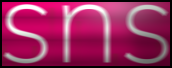
sns